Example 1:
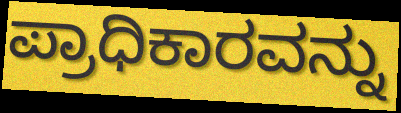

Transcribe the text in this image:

ಪ್ರಾಧಿಕಾರವನ್ನು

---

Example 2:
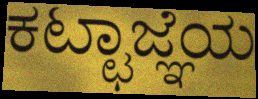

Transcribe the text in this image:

ಕಟ್ಟಾಜ್ಞೆಯ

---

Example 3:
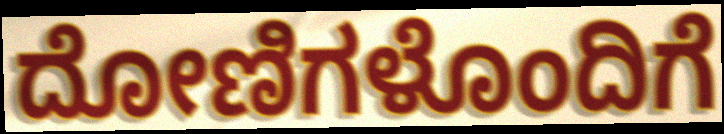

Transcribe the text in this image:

ದೋಣಿಗಳೊಂದಿಗೆ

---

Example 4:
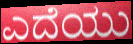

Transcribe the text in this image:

ಎದೆಯು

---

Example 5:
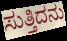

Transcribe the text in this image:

ಸುತ್ತಿದನು